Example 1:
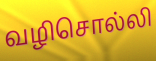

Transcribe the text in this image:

வழிசொல்லி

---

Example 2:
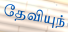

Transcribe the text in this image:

தேவியுந்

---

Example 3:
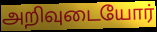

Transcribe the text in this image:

அறிவுடையோர்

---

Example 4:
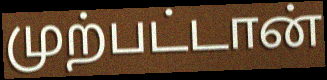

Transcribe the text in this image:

முற்பட்டான்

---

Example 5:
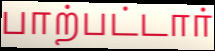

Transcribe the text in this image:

பாற்பட்டார்